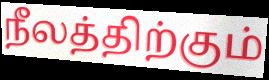
நீலத்திற்கும்